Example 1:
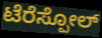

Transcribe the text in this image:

ಟೆರೆಸ್ಪೋಲ್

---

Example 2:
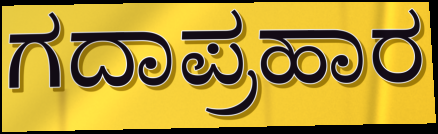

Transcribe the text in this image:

ಗದಾಪ್ರಹಾರ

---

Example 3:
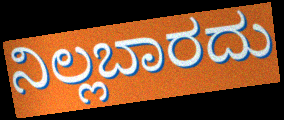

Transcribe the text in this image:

ನಿಲ್ಲಬಾರದು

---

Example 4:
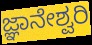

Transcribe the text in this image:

ಜ್ಞಾನೇಶ್ವರಿ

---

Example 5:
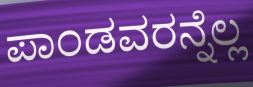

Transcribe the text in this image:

ಪಾಂಡವರನ್ನೆಲ್ಲ